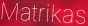
Matrikas